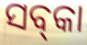
ସବ୍‌କା